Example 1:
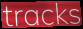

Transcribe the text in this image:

tracks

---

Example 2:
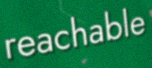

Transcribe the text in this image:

reachable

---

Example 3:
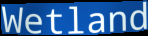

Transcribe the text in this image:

Wetland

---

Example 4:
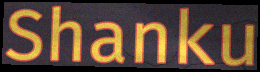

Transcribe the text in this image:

Shanku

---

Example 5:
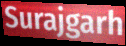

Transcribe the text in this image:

Surajgarh